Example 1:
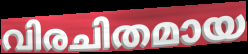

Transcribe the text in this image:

വിരചിതമായ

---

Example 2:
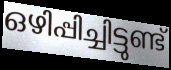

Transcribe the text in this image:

ഒഴിപ്പിച്ചിട്ടുണ്ട്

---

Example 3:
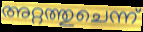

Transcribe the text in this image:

അറ്റത്തുചെന്ന്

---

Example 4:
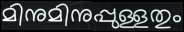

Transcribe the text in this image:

മിനുമിനുപ്പുള്ളതും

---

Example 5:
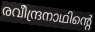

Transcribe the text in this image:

രവീന്ദ്രനാഥിന്റെ